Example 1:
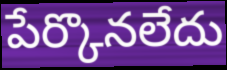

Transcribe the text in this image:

పేర్కొనలేదు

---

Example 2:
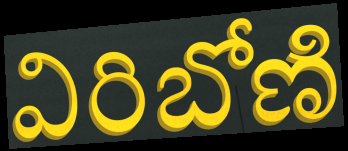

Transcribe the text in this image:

విరిబోణి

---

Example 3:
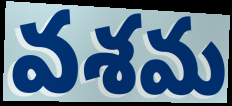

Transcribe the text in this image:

వశమ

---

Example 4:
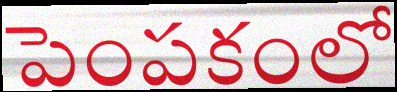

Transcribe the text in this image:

పెంపకంలో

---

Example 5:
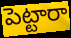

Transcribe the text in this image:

పెట్టారా